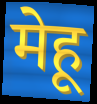
मेहू